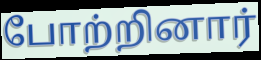
போற்றினார்